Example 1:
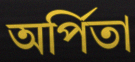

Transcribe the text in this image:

অর্পিতা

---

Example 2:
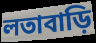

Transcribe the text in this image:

লতাবাড়ি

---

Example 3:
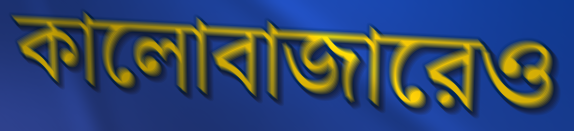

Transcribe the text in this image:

কালোবাজারেও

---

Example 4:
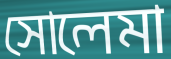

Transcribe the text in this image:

সোলেমা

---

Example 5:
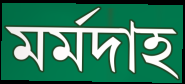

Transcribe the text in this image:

মর্মদাহ